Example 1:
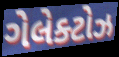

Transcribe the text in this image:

ગેલેક્ટોઝ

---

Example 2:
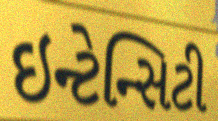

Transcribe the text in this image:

ઇન્ટેન્સિટી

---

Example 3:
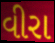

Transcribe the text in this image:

વીરા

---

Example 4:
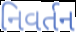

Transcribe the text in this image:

નિવર્તન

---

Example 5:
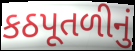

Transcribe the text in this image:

કઠપૂતળીનું